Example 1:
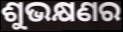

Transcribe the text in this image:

ଶୁଭକ୍ଷଣର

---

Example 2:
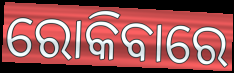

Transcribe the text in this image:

ରୋକିବାରେ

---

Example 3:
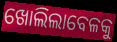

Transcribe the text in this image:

ଖୋଲିଲାବେଳକୁ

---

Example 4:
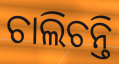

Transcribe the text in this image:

ଚାଲିଚନ୍ତି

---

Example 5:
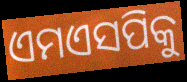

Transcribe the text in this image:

ଏମଏସପିକୁ